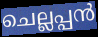
ചെല്ലപ്പൻ